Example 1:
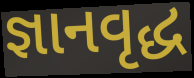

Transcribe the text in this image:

જ્ઞાનવૃદ્ધ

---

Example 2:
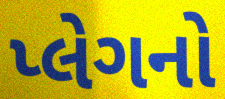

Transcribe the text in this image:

પ્લેગનો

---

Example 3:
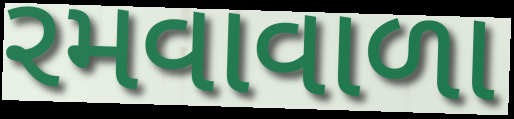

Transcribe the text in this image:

રમવાવાળા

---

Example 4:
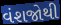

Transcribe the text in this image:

વંશજોથી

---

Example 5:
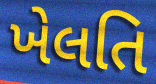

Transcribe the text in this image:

ખેલતિ